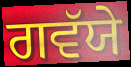
ਗਵੱਯੇ